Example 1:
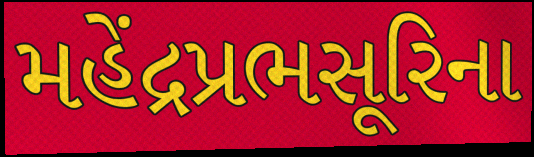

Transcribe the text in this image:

મહેંદ્રપ્રભસૂરિના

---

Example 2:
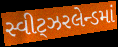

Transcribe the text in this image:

સ્વીટ્ઝરલેન્ડમાં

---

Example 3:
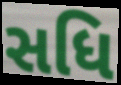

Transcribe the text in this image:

સધિ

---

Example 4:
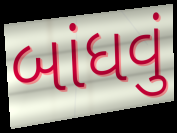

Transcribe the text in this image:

બાંધવું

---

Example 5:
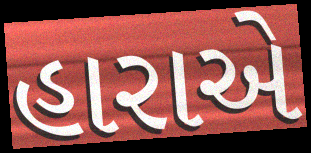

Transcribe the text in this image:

હારાએ